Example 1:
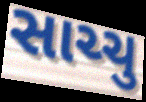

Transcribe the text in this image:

સાચ્ચુ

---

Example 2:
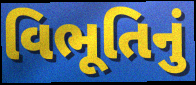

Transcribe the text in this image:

વિભૂતિનું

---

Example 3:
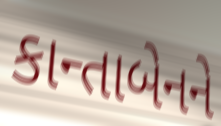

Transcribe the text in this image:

કાન્તાબેનને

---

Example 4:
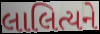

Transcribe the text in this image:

લાલિત્યને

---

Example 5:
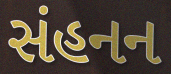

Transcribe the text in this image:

સંહનન